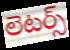
లెటర్స్